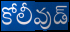
కోలీవుడ్